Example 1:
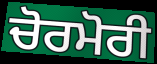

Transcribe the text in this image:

ਚੋਰਮੋਰੀ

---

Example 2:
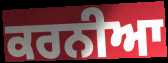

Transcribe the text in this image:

ਕਰਨੀਆ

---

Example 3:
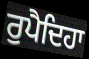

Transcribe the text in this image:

ਰੁਪੈਦਿਹਾ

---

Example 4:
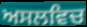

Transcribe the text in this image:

ਅਸਲਵਿਚ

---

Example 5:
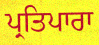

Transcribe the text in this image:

ਪ੍ਰਤਿਪਾਰਾ